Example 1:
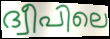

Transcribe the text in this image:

ദ്വീപിലെ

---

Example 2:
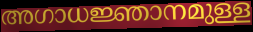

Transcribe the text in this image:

അഗാധജ്ഞാനമുള്ള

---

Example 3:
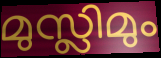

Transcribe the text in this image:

മുസ്ലിമും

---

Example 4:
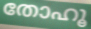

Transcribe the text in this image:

തോഹൂ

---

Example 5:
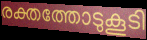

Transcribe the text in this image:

രക്തത്തോടുകൂടി